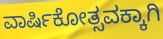
ವಾರ್ಷಿಕೋತ್ಸವಕ್ಕಾಗಿ